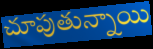
చూపుతున్నాయి